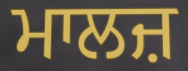
ਮਾਲਜ਼